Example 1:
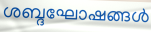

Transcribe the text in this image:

ശബ്ദഘോഷങ്ങൾ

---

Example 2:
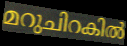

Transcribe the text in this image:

മറുചിറകിൽ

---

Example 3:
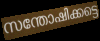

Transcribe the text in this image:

സന്തോഷിക്കട്ടെ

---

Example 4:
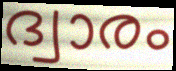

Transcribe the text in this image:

ദ്വാരം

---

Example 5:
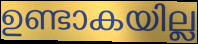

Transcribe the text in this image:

ഉണ്ടാകയില്ല